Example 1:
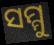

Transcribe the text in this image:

ସମ୍ମୁ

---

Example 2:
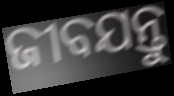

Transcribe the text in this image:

ଜୀବଯନ୍ତୁ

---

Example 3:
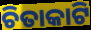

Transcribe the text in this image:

ଚିତାକାଟି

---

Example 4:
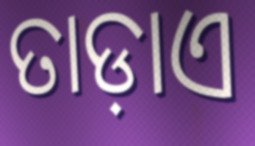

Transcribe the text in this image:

ତାଡ଼ାଏ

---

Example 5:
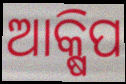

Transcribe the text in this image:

ଆକ୍ଷିପ